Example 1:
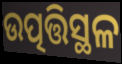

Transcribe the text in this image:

ଉତ୍ପତ୍ତିସ୍ଥଳ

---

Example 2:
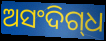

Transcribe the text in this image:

ଅସଂଦିଗ୍‌ଧ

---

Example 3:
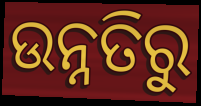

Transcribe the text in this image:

ଉନ୍ନତିରୁ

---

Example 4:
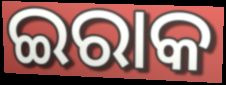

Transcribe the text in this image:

ଇରାକ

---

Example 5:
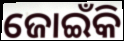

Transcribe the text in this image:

ଜୋଇଁକି